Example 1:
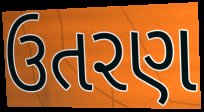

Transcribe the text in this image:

ઉતરણ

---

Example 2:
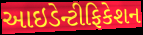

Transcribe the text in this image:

આઇડેન્ટીફિકેશન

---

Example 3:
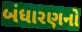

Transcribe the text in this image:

બંધારણનો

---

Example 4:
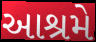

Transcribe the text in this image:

આશ્રમે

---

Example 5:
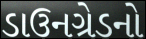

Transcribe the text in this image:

ડાઉનગ્રેડનો